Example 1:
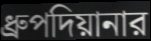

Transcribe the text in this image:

ধ্রুপদিয়ানার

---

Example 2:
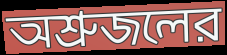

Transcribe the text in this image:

অশ্রুজলের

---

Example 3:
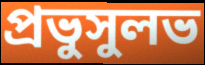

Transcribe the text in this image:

প্রভুসুলভ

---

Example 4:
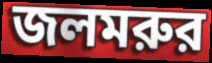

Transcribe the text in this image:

জলমরুর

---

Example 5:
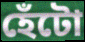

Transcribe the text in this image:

হেঁটো